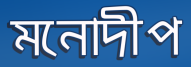
মনোদীপ